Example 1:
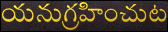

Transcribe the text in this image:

యనుగ్రహించుట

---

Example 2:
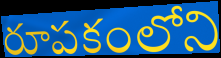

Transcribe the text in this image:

రూపకంలోని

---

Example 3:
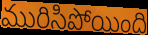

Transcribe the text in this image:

మురిసిపోయింది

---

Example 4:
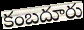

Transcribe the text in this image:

కంబదూరు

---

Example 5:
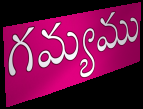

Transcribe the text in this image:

గమ్యము